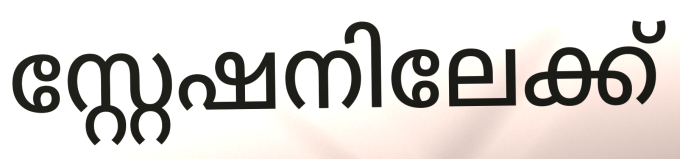
സ്റ്റേഷനിലേക്ക്